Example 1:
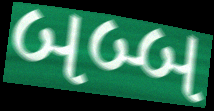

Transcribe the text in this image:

બબ્બ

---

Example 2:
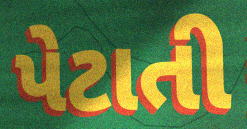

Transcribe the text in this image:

પેટાતી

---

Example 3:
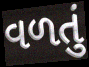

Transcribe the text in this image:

વળતું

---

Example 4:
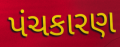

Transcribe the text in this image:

પંચકારણ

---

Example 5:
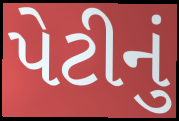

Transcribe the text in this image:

પેટીનું